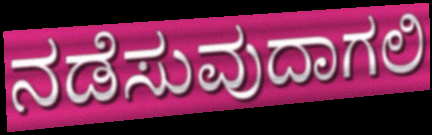
ನಡೆಸುವುದಾಗಲಿ